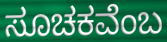
ಸೂಚಕವೆಂಬ